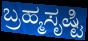
ಬ್ರಹ್ಮಸೃಷ್ಟಿ